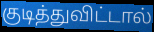
குடித்துவிட்டால்